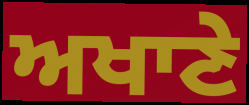
ਅਖਾਣੇ